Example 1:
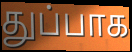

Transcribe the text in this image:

துப்பாக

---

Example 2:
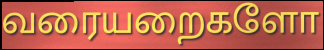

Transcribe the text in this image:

வரையறைகளோ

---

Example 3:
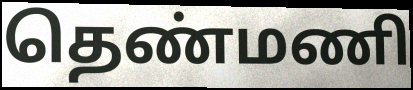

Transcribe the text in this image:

தெண்மணி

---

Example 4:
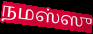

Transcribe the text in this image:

நமஸ்ஸு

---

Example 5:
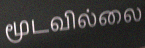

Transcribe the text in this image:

மூடவில்லை